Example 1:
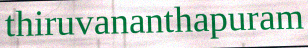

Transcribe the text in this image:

thiruvananthapuram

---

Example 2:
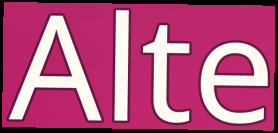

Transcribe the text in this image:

Alte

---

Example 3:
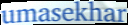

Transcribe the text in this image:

umasekhar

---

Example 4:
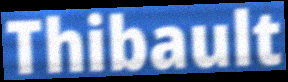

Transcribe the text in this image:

Thibault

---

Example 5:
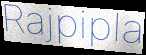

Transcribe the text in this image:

Rajpipla